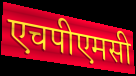
एचपीएमसी